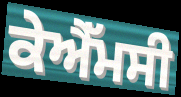
ਕੇਐੱਮਸੀ